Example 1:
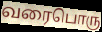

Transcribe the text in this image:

வரைபொரு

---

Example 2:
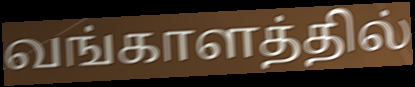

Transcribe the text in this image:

வங்காளத்தில்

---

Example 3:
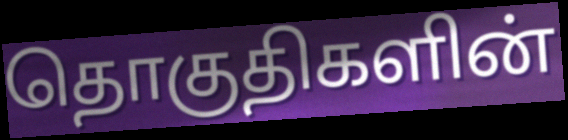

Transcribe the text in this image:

தொகுதிகளின்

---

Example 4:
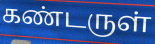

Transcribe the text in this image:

கண்டருள்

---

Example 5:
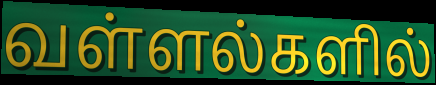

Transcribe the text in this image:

வள்ளல்களில்